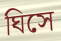
ঘিসে